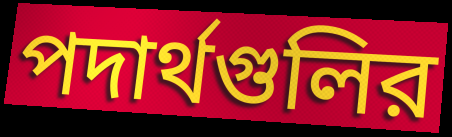
পদার্থগুলির